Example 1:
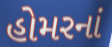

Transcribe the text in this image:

હોમરનાં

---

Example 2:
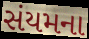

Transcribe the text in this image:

સંયમના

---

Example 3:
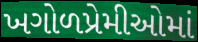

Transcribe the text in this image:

ખગોળપ્રેમીઓમાં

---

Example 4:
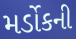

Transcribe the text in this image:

મર્ડોકની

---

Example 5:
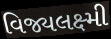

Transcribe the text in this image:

વિજ્યલક્ષ્મી